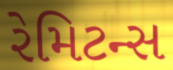
રેમિટન્સ